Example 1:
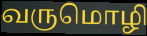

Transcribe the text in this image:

வருமொழி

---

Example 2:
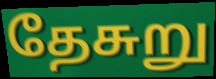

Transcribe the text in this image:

தேசுறு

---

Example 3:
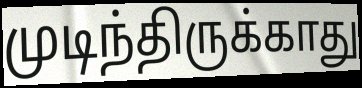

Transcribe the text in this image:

முடிந்திருக்காது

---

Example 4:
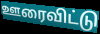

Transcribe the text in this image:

ஊரைவிட்டு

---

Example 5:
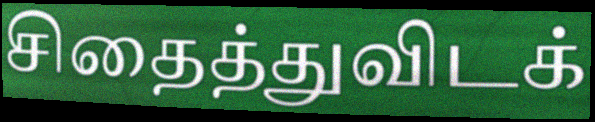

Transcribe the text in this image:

சிதைத்துவிடக்